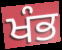
ਖੰਭ